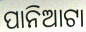
ପାନିଆଟା